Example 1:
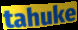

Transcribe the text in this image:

tahuke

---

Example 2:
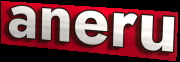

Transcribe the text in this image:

aneru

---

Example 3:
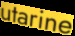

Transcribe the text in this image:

utarine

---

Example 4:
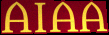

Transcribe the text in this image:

AIAA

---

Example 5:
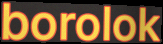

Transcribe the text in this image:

borolok